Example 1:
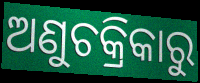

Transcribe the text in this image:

ଅଣୁଚକ୍ରିକାରୁ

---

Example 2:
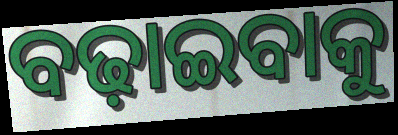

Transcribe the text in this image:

ବଢ଼ାଇବାକୁ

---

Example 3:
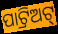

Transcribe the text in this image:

ପାଟ୍ରିଅଟ୍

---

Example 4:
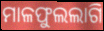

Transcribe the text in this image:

ମାଳଫୁଲଲାଗି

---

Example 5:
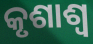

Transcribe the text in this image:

କୃଶାଶ୍ୱ